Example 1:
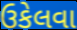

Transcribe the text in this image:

ઉકેલવા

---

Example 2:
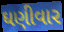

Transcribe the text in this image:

ઘણીવાર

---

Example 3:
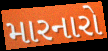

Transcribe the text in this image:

મારનારો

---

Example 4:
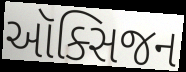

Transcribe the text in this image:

ઑક્સિજન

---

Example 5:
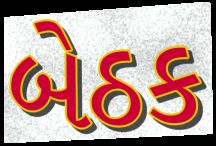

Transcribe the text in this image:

બેઠક